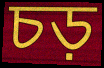
চড়